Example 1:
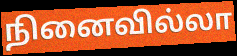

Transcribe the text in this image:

நினைவில்லா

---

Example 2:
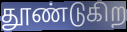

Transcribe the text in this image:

தூண்டுகிற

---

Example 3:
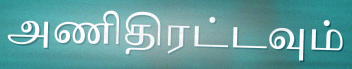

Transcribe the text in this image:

அணிதிரட்டவும்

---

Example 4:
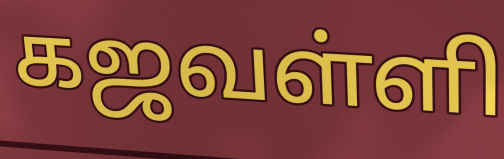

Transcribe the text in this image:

கஜவள்ளி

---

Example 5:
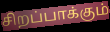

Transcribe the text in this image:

சிறப்பாக்கும்